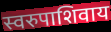
स्वरुपाशिवाय